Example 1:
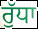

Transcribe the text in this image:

ਰੁੱਧਾ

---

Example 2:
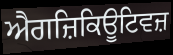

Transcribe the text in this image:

ਐਗਜ਼ਿਕਿਊਟਿਵਜ਼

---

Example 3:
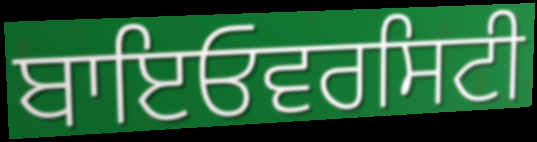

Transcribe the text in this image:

ਬਾਇਓਵਰਸਿਟੀ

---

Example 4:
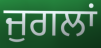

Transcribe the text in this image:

ਜੁਗਲਾਂ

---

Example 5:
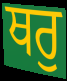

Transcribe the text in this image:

ਥਰੁ